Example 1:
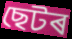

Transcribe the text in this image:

ছেটৰ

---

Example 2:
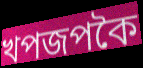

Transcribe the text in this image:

খপজপকৈ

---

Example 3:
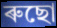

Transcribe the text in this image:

ৰুছো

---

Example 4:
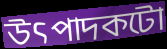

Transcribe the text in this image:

উৎপাদকটো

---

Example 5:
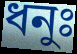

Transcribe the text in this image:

ধনুঃ